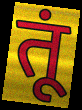
तूं